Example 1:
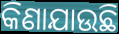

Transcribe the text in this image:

କିଣାଯାଉଛି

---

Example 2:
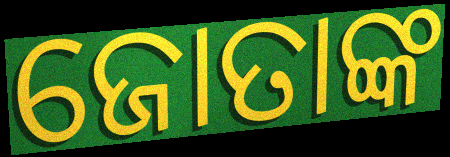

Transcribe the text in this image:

ଜୋତାଙ୍କ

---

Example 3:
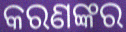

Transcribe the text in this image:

କରଣଙ୍କର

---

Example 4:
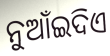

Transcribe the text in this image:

ନୁଆଁଇଦିଏ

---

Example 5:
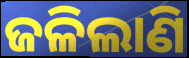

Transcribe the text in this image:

ଜଳିଲାଣି